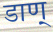
डाण्